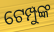
ଟେମ୍ପୁଙ୍କ